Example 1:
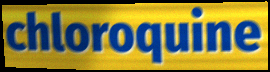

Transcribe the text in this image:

chloroquine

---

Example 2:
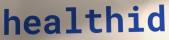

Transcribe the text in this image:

healthid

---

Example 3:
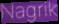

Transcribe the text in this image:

Nagrik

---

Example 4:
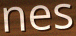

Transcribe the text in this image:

nes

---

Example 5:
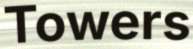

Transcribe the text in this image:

Towers